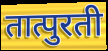
तात्पुरती